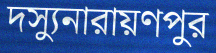
দস্যুনারায়ণপুর